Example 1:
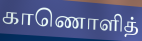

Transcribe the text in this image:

காணொளித்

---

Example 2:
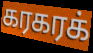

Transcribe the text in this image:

கரகரக்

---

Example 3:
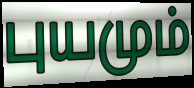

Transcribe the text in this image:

புயமும்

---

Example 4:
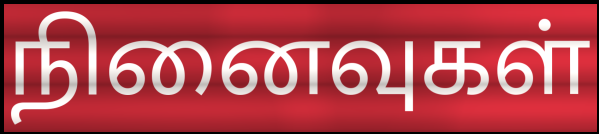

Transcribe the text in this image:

நினைவுகள்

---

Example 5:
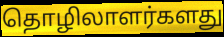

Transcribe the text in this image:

தொழிலாளர்களது